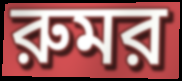
রুমর